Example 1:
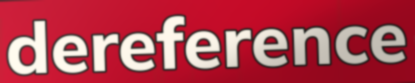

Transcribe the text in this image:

dereference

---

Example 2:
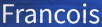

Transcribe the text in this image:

Francois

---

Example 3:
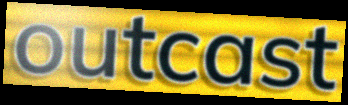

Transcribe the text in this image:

outcast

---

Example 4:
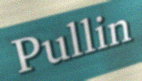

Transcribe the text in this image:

Pullin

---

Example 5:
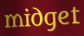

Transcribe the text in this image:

midget